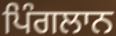
ਪਿੰਗਲਾਨ